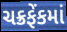
ચક્રફેંકમાં